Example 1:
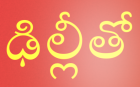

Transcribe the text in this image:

ఢిల్లీతో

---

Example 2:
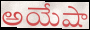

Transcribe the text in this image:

అయేషా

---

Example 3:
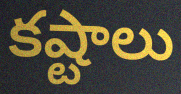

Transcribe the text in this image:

కష్టాలు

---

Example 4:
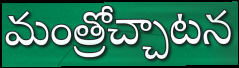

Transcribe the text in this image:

మంత్రోచ్చాటన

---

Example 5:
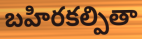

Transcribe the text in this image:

బహిరకల్పితా